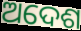
ଅଦେଶ